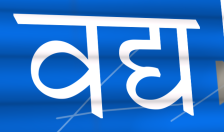
वद्य